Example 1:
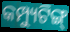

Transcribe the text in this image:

କମ୍ପ୍ୟୁଟିଙ୍ଗ୍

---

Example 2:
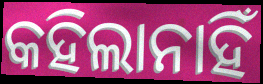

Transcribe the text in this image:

କହିଲାନାହିଁ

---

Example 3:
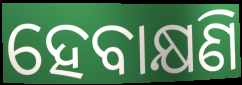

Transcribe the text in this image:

ହେବାକ୍ଷଣି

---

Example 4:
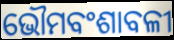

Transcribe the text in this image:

ଭୌମବଂଶାବଳୀ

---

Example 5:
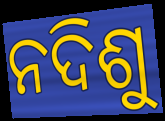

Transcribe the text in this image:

ନଦିଶୁ